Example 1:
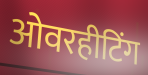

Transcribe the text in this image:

ओवरहीटिंग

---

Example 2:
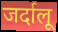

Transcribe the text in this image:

जर्दालू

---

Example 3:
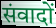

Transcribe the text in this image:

संवादों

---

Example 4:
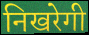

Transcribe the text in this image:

निखरेगी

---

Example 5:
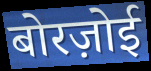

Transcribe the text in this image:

बोरज़ोई